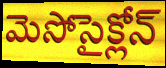
మెసోసైక్లోన్